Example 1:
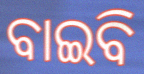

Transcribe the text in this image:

ବାଇବି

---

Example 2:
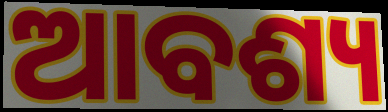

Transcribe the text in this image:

ଆବଶ୍ୟ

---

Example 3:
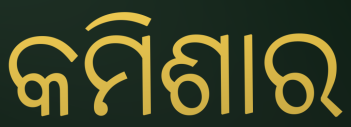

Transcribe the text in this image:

କମିଶାର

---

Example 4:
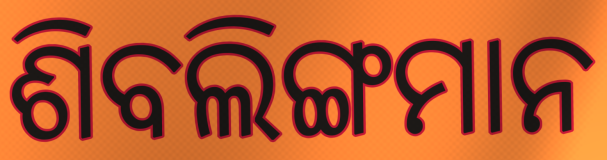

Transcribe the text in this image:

ଶିବଲିଙ୍ଗମାନ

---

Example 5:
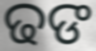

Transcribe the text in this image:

ଢଙ